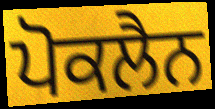
ਪੋਕਲੈਨ